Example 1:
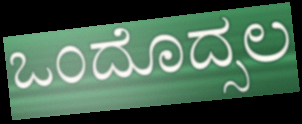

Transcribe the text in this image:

ಒಂದೊದ್ಸಲ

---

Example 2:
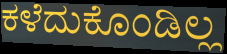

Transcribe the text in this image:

ಕಳೆದುಕೊಂಡಿಲ್ಲ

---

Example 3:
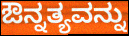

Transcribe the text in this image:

ಔನ್ನತ್ಯವನ್ನು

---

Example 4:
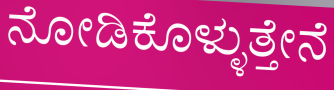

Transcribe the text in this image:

ನೋಡಿಕೊಳ್ಳುತ್ತೇನೆ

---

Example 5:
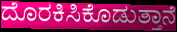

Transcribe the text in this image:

ದೊರಕಿಸಿಕೊಡುತ್ತಾನೆ